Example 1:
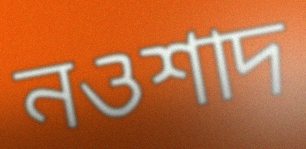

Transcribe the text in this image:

নওশাদ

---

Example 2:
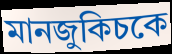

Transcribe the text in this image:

মানজুকিচকে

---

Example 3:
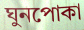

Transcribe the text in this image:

ঘুনপোকা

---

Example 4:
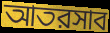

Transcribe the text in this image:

আতরসাব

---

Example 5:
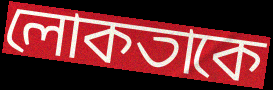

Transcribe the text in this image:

লোকতাকে